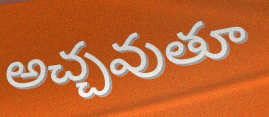
అచ్చవుతూ